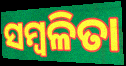
ସମ୍ବଳିତା